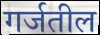
गर्जतील